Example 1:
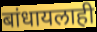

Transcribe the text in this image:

बांधायलाही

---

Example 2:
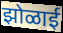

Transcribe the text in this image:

झोळाई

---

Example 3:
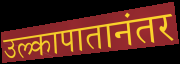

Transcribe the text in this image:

उल्कापातानंतर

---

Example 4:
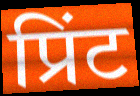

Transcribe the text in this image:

प्रिंट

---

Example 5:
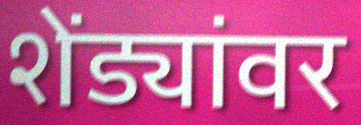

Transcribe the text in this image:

शेंड्यांवर